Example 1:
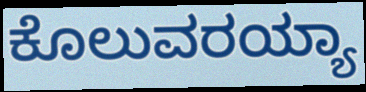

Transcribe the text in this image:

ಕೊಲುವರಯ್ಯಾ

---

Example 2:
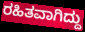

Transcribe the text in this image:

ರಹಿತವಾಗಿದ್ದು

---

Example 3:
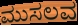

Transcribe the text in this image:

ಮುಸಲವ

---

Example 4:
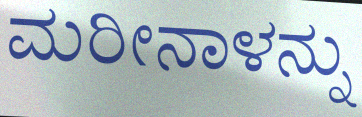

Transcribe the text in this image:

ಮರೀನಾಳನ್ನು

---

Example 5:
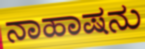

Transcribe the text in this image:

ನಾಹಾಷನು